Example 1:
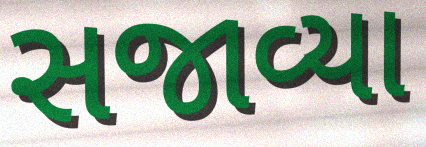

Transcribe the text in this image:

સજાવ્યા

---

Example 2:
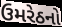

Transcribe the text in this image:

ઉમરેઠનો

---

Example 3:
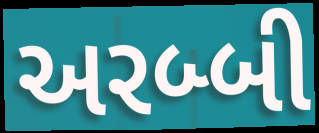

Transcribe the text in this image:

અરબ્બી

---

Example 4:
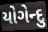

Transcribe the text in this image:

યોગેન્દુ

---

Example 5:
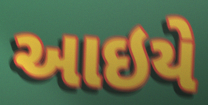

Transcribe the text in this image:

આઇયે